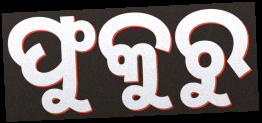
ଫୁକୁରୁ